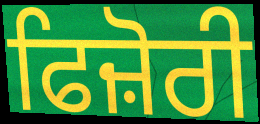
ਫਿਜ਼ੋਰੀ